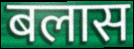
बलास